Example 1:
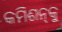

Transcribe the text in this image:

କମିଶନ୍‌କୁ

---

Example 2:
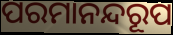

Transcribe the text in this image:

ପରମାନନ୍ଦରୂପ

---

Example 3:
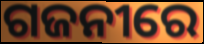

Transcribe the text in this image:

ଗଜନୀରେ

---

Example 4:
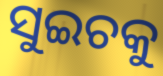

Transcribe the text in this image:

ସୁଇଚକୁ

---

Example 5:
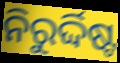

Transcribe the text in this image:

ନିରୁର୍ଦ୍ଦିଷ୍ଟ